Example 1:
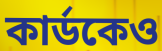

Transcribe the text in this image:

কার্ডকেও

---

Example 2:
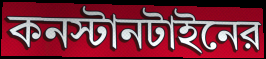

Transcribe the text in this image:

কনস্টানটাইনের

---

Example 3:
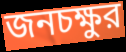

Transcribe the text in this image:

জনচক্ষুর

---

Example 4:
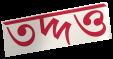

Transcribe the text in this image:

তদ্দত্ত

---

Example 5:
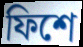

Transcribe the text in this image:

ফিশে